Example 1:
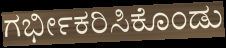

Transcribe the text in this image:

ಗರ್ಭೀಕರಿಸಿಕೊಂಡು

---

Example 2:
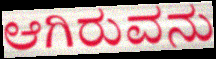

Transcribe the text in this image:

ಆಗಿರುವನು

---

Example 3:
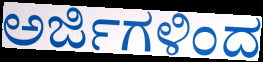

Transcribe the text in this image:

ಅರ್ಜಿಗಳಿಂದ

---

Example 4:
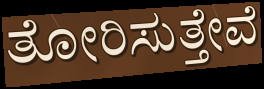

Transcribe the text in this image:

ತೋರಿಸುತ್ತೇವೆ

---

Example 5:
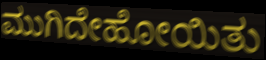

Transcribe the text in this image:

ಮುಗಿದೇಹೋಯಿತು